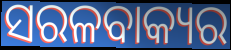
ସରଳବାକ୍ୟର